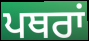
ਪਥਰਾਂ